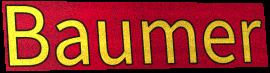
Baumer